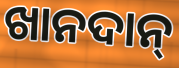
ଖାନଦାନ୍